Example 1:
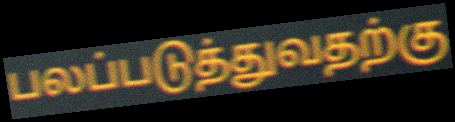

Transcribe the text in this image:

பலப்படுத்துவதற்கு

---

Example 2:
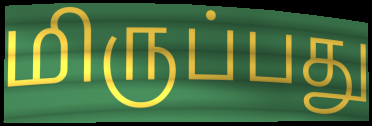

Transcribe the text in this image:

மிருப்பது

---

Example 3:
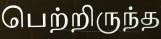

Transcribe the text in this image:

பெற்றிருந்த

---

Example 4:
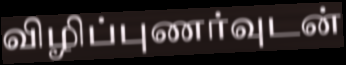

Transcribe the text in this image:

விழிப்புணர்வுடன்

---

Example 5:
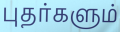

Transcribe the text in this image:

புதர்களும்